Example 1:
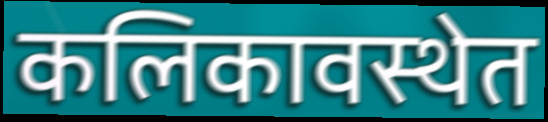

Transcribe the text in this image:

कलिकावस्थेत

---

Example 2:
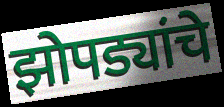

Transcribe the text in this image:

झोपड्यांचे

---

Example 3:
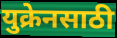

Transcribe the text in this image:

युक्रेनसाठी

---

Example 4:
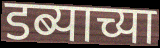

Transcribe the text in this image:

डब्याच्या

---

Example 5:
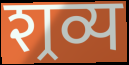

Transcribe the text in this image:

श्रव्य